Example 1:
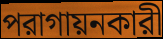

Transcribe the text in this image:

পরাগায়নকারী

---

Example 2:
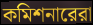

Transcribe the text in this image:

কমিশনারেরা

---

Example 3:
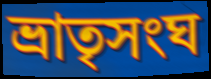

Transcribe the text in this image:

ভ্রাতৃসংঘ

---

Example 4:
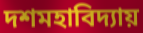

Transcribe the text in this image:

দশমহাবিদ্যায়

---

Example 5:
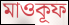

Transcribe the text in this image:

মাওকূফ